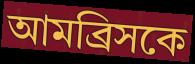
আমব্রিসকে